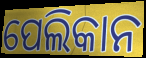
ପେଲିକାନ